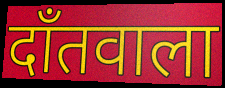
दाँतवाला